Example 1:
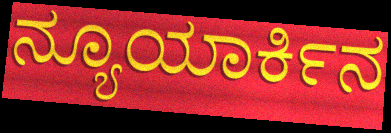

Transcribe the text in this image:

ನ್ಯೂಯಾರ್ಕಿನ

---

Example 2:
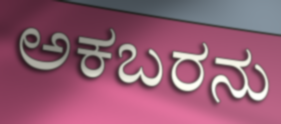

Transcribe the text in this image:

ಅಕಬರನು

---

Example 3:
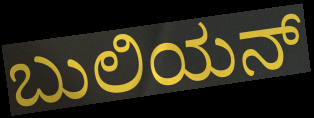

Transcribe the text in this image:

ಬುಲಿಯನ್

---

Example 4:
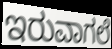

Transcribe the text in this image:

ಇರುವಾಗಲೆ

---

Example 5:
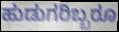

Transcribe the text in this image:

ಹುಡುಗರಿಬ್ಬರೂ